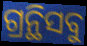
ଗ୍ରନ୍ଥିସବୁ